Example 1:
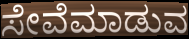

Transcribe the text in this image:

ಸೇವೆಮಾಡುವ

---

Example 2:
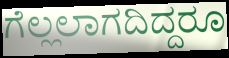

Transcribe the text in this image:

ಗೆಲ್ಲಲಾಗದಿದ್ದರೂ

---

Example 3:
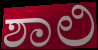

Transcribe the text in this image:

ಶಾಲಿ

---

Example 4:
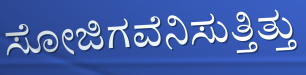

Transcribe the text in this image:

ಸೋಜಿಗವೆನಿಸುತ್ತಿತ್ತು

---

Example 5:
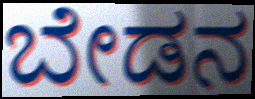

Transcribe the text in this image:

ಬೇಡನ